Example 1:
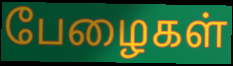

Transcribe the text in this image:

பேழைகள்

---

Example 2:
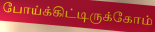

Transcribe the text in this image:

போய்க்கிட்டிருக்கோம்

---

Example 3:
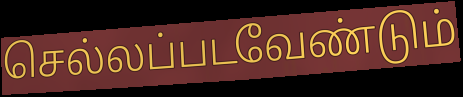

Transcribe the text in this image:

செல்லப்படவேண்டும்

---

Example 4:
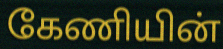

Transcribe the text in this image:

கேணியின்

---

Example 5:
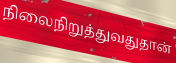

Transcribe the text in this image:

நிலைநிறுத்துவதுதான்